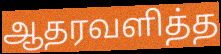
ஆதரவளித்த